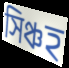
সিঞ্চহ